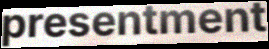
presentment